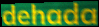
dehada